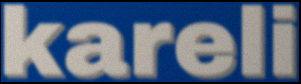
kareli